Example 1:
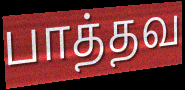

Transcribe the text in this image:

பாத்தவ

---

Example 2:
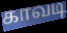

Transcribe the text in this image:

காவடி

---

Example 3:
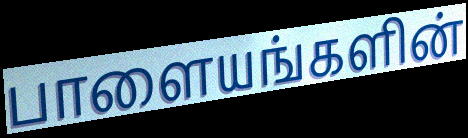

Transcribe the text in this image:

பாளையங்களின்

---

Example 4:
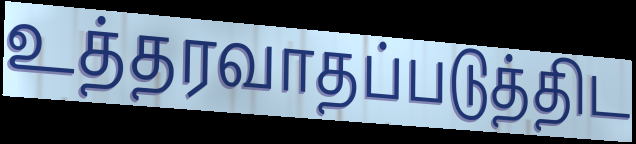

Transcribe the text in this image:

உத்தரவாதப்படுத்திட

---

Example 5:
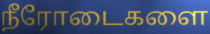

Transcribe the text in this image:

நீரோடைகளை